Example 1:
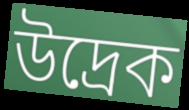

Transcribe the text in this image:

উদ্ৰেক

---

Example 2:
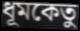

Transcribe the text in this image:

ধূমকেতু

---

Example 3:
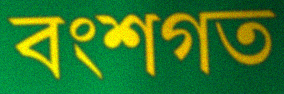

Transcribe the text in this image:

বংশগত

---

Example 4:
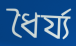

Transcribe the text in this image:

ধৈৰ্য্য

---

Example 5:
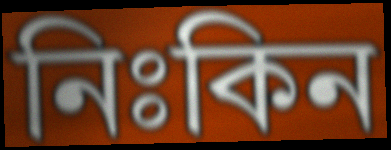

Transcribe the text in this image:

নিঃকিন